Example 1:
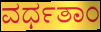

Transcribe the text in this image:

ವರ್ಧತಾಂ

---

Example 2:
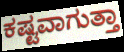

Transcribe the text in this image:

ಕಷ್ಟವಾಗುತ್ತಾ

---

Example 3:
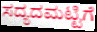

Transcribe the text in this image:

ಸದ್ಯದಮಟ್ಟಿಗೆ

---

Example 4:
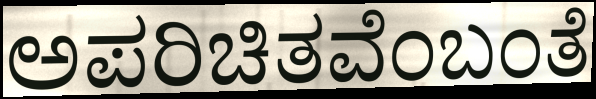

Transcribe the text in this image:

ಅಪರಿಚಿತವೆಂಬಂತೆ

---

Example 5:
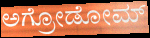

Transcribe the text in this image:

ಅಗ್ರೋಡೋಮ್